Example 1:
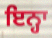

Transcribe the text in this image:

ਇਨ੍ਹਾ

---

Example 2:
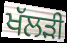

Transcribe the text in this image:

ਖੱਲੜੀ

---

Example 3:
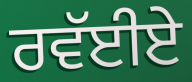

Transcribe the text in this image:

ਰਵੱਈਏ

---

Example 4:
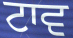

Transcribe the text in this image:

ਟਾਵ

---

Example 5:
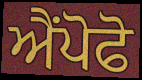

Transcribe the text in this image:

ਐਂਪੋਫੋ